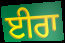
ਈਰਾ